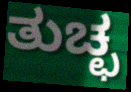
ತುಚ್ಛ